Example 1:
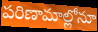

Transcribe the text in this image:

పరిణామాల్లోనూ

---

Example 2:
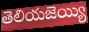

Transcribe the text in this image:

తెలియజెయ్యి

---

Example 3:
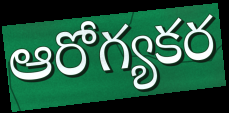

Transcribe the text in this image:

ఆరోగ్యకర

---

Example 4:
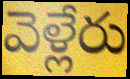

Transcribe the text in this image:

వెళ్లేరు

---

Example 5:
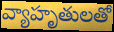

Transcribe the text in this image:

వ్యాహృతులతో